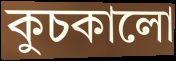
কুচকালো